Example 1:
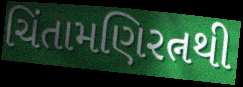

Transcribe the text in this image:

ચિંતામણિરત્નથી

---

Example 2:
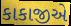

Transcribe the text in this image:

કાકાજીએ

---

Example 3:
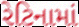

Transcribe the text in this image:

રેટિનામાં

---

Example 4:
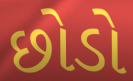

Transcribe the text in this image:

છોડો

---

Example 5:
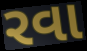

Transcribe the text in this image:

રવા